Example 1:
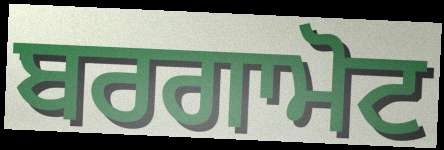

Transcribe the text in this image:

ਬਰਗਾਮੋਟ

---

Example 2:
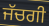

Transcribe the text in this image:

ਜੱਚਗੀ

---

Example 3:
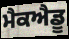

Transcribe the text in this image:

ਮੈਕਐਡੂ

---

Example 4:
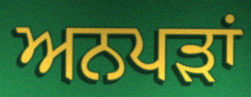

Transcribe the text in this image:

ਅਨਪੜਾਂ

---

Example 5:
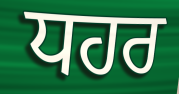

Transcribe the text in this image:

ਧਹਰ